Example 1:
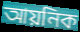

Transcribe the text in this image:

আয়নিক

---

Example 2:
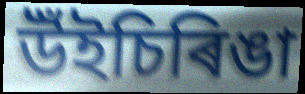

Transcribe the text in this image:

উঁইচিৰিঙা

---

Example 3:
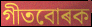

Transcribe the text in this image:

গীতবোৰক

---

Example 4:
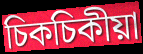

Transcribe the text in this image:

চিকচিকীয়া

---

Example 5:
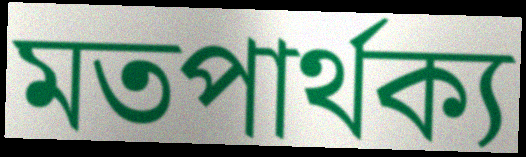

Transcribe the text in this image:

মতপাৰ্থক্য